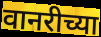
वानरीच्या